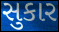
સુકાર